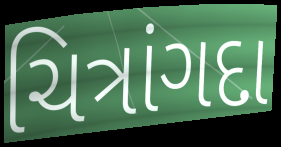
ચિત્રાંગદા